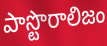
పాస్టొరాలిజం